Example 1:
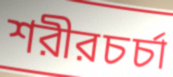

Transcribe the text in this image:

শরীরচর্চা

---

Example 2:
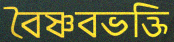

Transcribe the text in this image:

বৈষ্ণবভক্তি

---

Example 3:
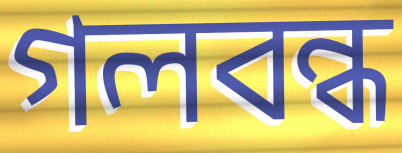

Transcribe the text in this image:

গলবন্ধ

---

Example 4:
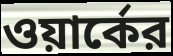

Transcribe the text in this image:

ওয়ার্কের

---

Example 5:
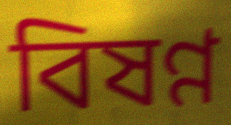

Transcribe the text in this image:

বিষণ্ন